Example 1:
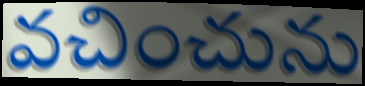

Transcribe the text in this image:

వచించును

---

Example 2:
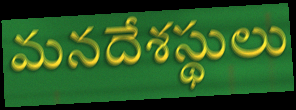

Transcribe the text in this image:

మనదేశస్థులు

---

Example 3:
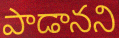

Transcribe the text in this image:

పాడానని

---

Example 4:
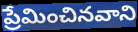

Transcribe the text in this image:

ప్రేమించినవాని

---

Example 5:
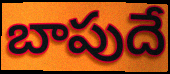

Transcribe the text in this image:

బాపుదే